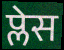
प्लेस